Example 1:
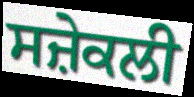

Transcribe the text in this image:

ਸਜ਼ੇਕਲੀ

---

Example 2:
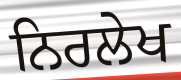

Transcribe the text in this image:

ਨਿਰਲੇਖ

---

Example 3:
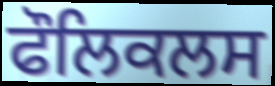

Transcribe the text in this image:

ਫੌਲਿਕਲਸ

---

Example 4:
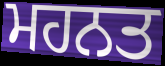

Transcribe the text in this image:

ਮਹਨਤ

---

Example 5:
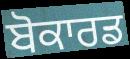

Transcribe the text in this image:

ਬੋਕਾਰਡ